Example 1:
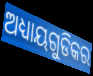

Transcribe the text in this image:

ଅଧ୍ୟାୟଗୁଡିକର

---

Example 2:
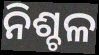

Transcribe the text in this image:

ନିଶ୍ଚଳ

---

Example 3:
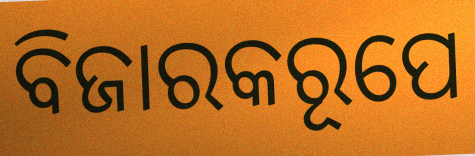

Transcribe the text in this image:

ବିଜାରକରୂପେ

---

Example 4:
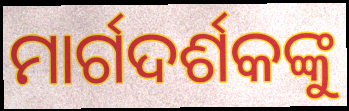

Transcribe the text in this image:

ମାର୍ଗଦର୍ଶକଙ୍କୁ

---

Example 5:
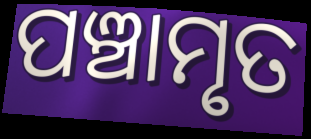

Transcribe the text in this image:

ପଞ୍ଚାମୃତ